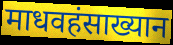
माधवहंसाख्यान